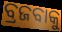
ବ୍ରଜବାକୁ